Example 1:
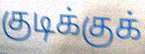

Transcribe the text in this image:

குடிக்குக்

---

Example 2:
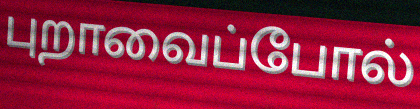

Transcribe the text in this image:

புறாவைப்போல்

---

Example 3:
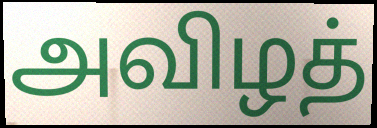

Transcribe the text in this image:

அவிழத்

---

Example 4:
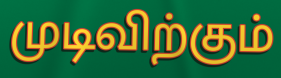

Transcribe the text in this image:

முடிவிற்கும்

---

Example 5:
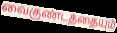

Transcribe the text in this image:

வைகுண்டத்தையும்